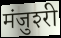
मंजुश्री